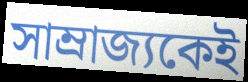
সাম্রাজ্যকেই